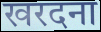
खरदना